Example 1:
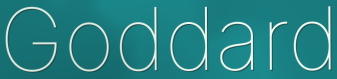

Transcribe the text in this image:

Goddard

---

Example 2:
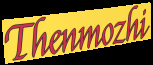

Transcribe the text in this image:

Thenmozhi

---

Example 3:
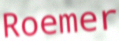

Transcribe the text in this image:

Roemer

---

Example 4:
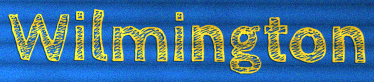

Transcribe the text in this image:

Wilmington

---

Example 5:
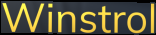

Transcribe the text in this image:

Winstrol